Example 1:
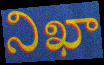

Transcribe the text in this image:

నిఖా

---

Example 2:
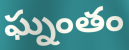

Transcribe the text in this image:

ఘ్నంతం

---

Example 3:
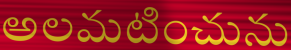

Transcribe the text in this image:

అలమటించును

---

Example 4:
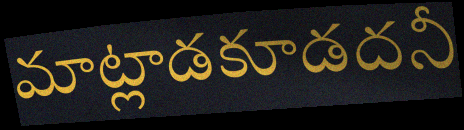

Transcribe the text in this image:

మాట్లాడకూడదనీ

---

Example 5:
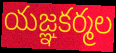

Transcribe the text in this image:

యజ్ఞకర్మల